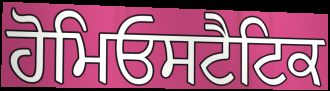
ਹੋਮਿਓਸਟੈਟਿਕ